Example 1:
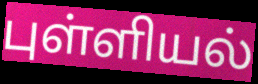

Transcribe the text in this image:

புள்ளியல்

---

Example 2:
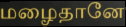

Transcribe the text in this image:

மழைதானே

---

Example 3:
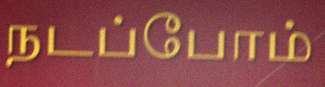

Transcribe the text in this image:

நடப்போம்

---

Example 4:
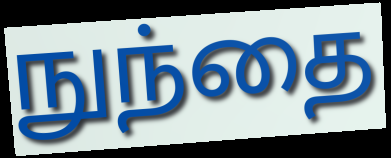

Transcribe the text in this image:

நுந்தை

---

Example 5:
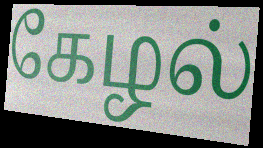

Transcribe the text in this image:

கேழல்